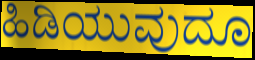
ಹಿಡಿಯುವುದೂ